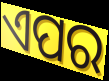
ଏପର